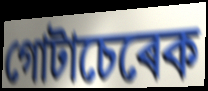
গোটাচেৰেক